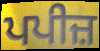
ਪਪੀਜ਼